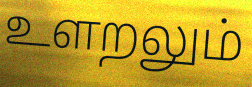
உளறலும்